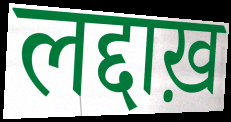
लद्दाख़